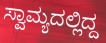
ಸ್ವಾಮ್ಯದಲ್ಲಿದ್ದ